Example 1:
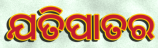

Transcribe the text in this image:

ଯତିପାତର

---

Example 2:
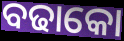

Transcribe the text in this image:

ବଢାକୋ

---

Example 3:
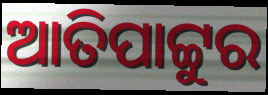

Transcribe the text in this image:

ଆତିପାଟ୍ଟୁର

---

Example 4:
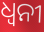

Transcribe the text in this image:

ଧ୍ୱନୀ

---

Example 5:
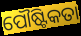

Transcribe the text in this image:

ପୌଷ୍ଟିକତା